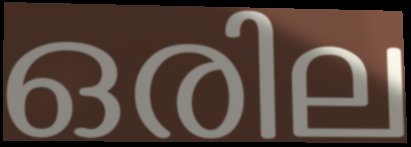
ഒരില